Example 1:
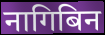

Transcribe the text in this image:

नागिबिन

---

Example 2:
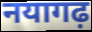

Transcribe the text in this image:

नयागढ़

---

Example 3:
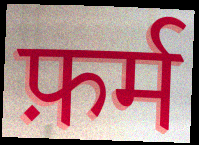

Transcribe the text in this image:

फ़र्म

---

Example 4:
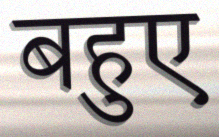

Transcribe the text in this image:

बहुए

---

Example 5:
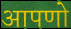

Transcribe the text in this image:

आपणो